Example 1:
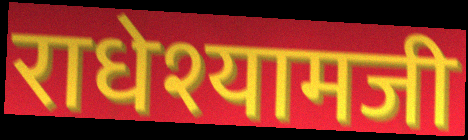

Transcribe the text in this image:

राधेश्यामजी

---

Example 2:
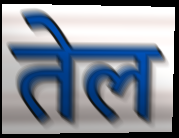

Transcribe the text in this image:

तेल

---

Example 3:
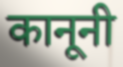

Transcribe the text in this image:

कानूनी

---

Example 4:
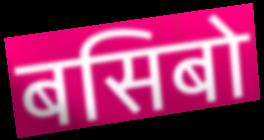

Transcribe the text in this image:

बसिबो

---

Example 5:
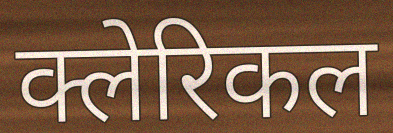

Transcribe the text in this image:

क्लेरिकल